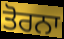
ਤੋਰਨਾ